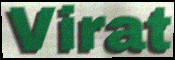
Virat